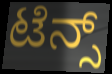
ಟೆನ್ಸ್